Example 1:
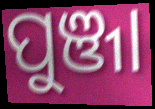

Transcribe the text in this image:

ପୁଞ୍ଜା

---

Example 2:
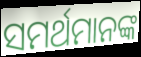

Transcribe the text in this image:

ସମର୍ଥମାନଙ୍କ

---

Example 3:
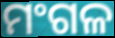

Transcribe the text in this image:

ମଂଗଳ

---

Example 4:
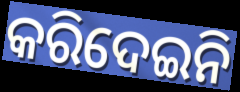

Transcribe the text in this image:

କରିଦେଇନି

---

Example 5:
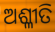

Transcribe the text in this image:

ଅଶ୍ଳୀତି